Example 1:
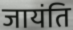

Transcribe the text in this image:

जायंति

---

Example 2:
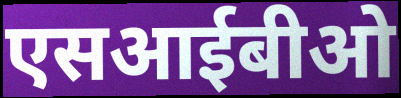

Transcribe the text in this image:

एसआईबीओ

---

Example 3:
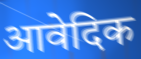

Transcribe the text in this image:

आवेदिक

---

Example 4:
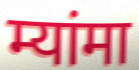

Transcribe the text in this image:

म्यांमा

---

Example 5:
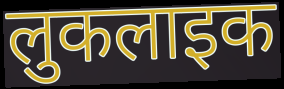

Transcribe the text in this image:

लुकलाइक